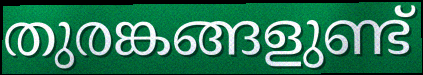
തുരങ്കങ്ങളുണ്ട്